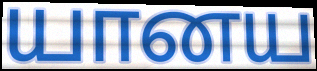
யானய